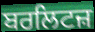
ਬਰਲਿਟਜ਼